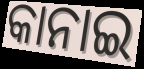
କାନାଇ